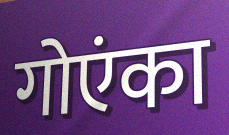
गोएंका